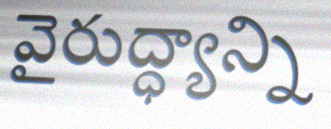
వైరుద్ధ్యాన్ని